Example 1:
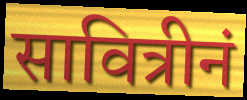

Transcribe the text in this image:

सावित्रीनं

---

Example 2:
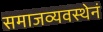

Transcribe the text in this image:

समाजव्यवस्थेनं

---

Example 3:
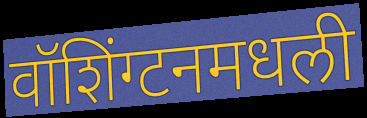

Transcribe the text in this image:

वॉशिंग्टनमधली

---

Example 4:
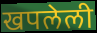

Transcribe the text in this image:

खपलेली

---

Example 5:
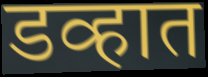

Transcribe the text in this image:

डव्हात